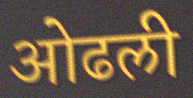
ओढली